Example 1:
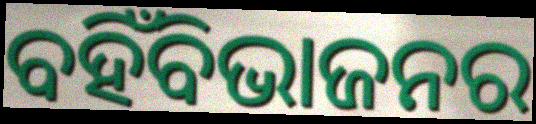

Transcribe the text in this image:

ବହିଁବିଭାଜନର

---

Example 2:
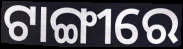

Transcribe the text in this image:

ଟାଙ୍ଗୀରେ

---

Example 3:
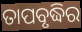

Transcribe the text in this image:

ତାପବୃଦ୍ଧିର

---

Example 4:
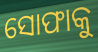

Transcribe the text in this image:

ସୋଫାକୁ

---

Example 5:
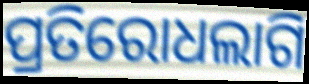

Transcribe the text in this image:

ପ୍ରତିରୋଧଲାଗି